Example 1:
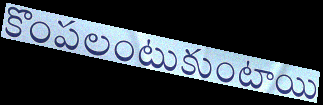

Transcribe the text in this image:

కొంపలంటుకుంటాయి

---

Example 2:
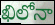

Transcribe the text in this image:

ఖిలోనా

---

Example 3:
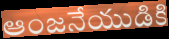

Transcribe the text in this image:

ఆంజనేయుడికి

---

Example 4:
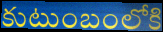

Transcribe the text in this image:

కుటుంబంలోకి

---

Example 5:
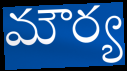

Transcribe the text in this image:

మౌర్య